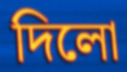
দিলো